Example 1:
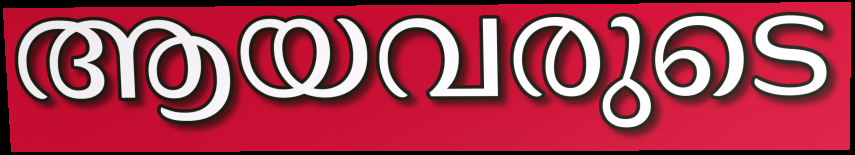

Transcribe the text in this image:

ആയവരുടെ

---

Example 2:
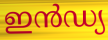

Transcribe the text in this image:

ഇൻഡ്യ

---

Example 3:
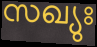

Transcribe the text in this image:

സഖ്യുഃ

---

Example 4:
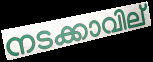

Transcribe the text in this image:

നടക്കാവില്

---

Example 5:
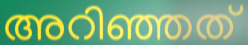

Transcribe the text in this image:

അറിഞ്ഞത്